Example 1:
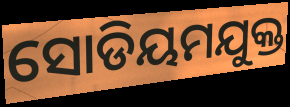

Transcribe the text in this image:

ସୋଡିୟମଯୁକ୍ତ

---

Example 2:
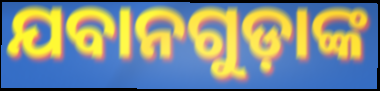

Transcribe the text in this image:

ଯବାନଗୁଡ଼ାଙ୍କ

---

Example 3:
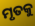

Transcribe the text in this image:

ମୃତକୁ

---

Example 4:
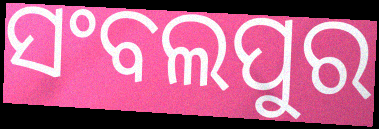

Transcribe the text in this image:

ସଂବଲପୁର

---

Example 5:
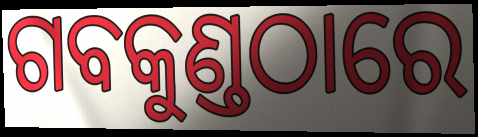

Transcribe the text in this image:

ଗବକୁଣ୍ଡଠାରେ